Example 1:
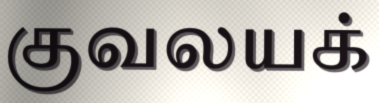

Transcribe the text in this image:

குவலயக்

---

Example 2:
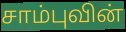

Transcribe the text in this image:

சாம்புவின்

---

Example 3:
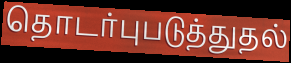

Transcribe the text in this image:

தொடர்புபடுத்துதல்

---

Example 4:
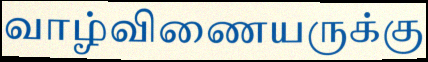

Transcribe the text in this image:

வாழ்விணையருக்கு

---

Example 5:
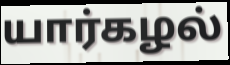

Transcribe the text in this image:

யார்கழல்